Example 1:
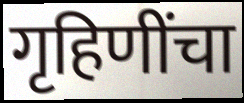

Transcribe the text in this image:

गृहिणींचा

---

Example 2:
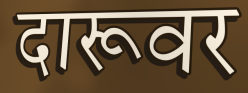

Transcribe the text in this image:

दारूवर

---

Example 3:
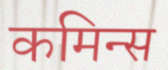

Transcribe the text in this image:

कमिन्स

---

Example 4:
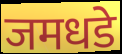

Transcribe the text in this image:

जमधडे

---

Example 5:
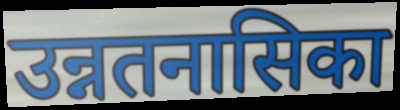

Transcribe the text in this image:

उन्नतनासिका